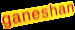
ganeshan